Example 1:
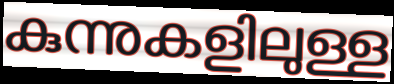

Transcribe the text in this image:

കുന്നുകളിലുള്ള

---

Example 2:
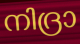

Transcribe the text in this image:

നിദ്രാ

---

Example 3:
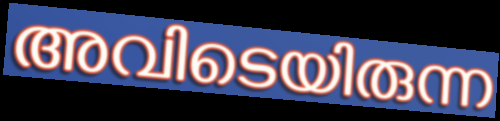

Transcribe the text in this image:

അവിടെയിരുന്ന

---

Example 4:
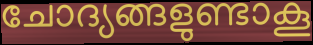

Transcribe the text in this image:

ചോദ്യങ്ങളുണ്ടാകൂ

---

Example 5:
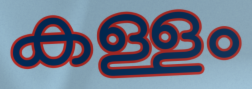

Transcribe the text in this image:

കള്ളം